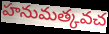
హనుమత్కవచ